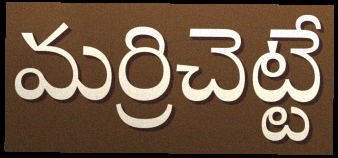
మర్రిచెట్టే